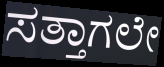
ಸತ್ತಾಗಲೇ